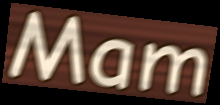
Mam